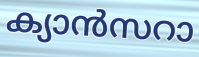
ക്യാൻസറാ